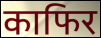
काफिर